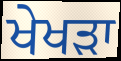
ਖੇਖੜਾ